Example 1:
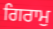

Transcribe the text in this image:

ਗਿਰਾਮੁ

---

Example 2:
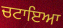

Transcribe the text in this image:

ਚਟਾਇਆ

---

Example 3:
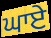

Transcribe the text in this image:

ਘਾਏ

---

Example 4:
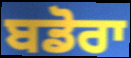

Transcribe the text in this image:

ਬਡੋਰਾ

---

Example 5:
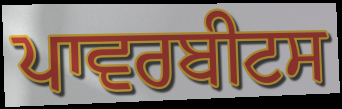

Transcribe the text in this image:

ਪਾਵਰਬੀਟਸ